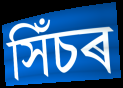
সিঁচৰ